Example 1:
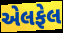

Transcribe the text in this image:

એલફેલ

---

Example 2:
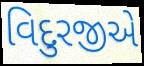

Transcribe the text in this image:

વિદુરજીએ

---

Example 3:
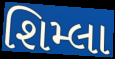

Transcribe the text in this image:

શિમ્લા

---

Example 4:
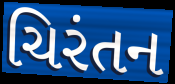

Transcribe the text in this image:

ચિરંતન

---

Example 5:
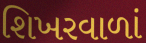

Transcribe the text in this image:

શિખરવાળાં